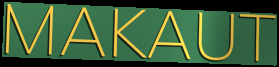
MAKAUT